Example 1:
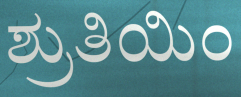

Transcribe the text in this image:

ಶ್ರುತಿಯಿಂ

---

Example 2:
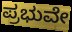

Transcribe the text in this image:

ಪ್ರಭುವೇ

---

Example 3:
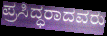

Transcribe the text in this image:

ಪ್ರಸಿದ್ಧರಾದವರು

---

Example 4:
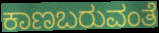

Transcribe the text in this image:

ಕಾಣಬರುವಂತೆ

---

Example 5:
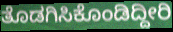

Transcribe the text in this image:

ತೊಡಗಿಸಿಕೊಂಡಿದ್ದೀರಿ